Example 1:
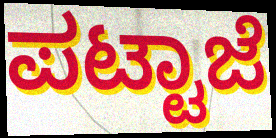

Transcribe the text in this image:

ಪಟ್ಟಾಜೆ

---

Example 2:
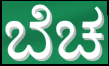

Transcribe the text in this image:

ಬೆಚ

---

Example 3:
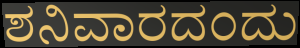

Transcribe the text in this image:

ಶನಿವಾರದಂದು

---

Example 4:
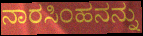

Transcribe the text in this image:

ನಾರಸಿಂಹನನ್ನು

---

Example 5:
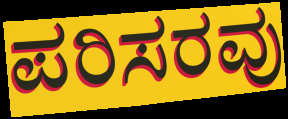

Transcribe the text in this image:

ಪರಿಸರವು